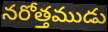
నరోత్తముడు